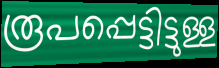
രൂപപ്പെട്ടിട്ടുള്ള